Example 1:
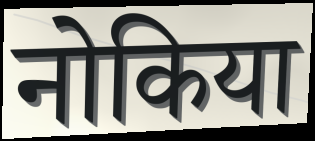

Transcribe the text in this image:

नोकिया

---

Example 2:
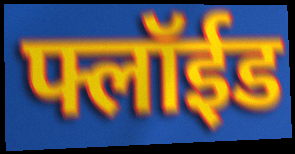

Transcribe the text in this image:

फ्लॉईड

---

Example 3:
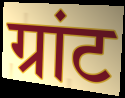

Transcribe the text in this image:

ग्रांट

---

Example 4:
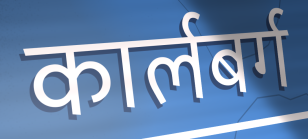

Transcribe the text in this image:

कार्लबर्ग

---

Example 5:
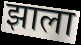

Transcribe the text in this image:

झाला